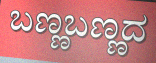
ಬಣ್ಣಬಣ್ಣದ